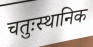
चतुःस्थानिक